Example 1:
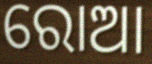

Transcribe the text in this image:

ରୋଆ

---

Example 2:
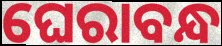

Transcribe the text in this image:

ଘେରାବନ୍ଧ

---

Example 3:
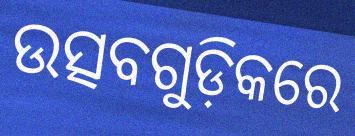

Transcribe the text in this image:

ଉତ୍ସବଗୁଡ଼ିକରେ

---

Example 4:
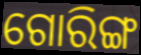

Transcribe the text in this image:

ଗୋରିଙ୍ଗ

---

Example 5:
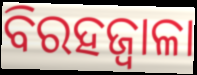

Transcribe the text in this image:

ବିରହଜ୍ୱାଳା